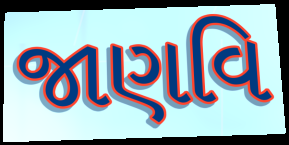
જાણવિ